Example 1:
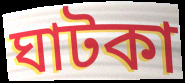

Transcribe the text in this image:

ঘাটকা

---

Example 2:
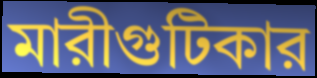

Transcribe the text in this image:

মারীগুটিকার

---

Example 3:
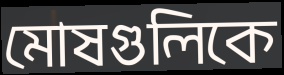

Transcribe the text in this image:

মোষগুলিকে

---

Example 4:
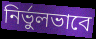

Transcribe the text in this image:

নির্ভুলভাবে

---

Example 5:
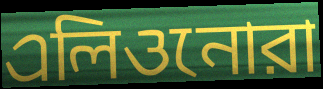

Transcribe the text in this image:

এলিওনোরা